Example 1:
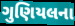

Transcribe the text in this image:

ગુણિયલના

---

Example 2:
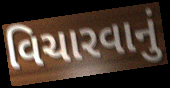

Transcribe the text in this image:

વિચારવાનું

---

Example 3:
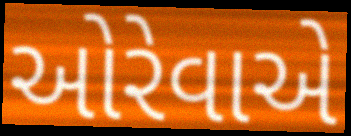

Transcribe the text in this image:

ઓરેવાએ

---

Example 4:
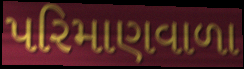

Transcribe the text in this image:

પરિમાણવાળા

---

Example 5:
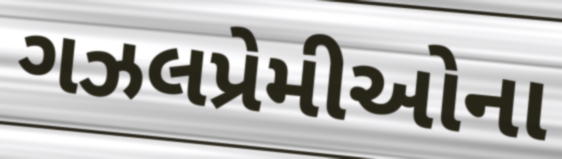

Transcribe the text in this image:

ગઝલપ્રેમીઓના